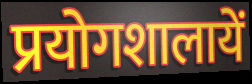
प्रयोगशालायें